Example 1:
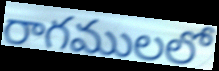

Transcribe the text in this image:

రాగములలో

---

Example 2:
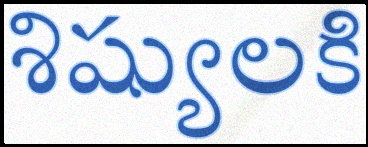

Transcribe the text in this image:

శిష్యులకి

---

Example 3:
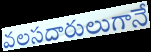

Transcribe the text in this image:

వలసదారులుగానే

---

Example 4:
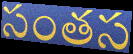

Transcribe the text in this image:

సంతస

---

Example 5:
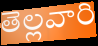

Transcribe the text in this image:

తెల్లవారి